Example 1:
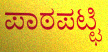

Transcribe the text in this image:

ಪಾಠಪಟ್ಟಿ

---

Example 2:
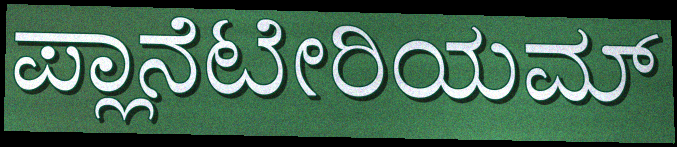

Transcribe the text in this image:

ಪ್ಲಾನೆಟೇರಿಯಮ್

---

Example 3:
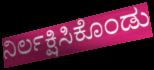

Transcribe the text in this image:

ನಿರ್ಲಕ್ಷಿಸಿಕೊಂಡು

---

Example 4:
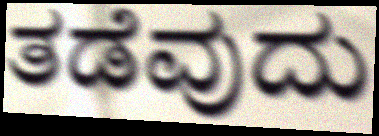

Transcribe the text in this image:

ತಡೆವುದು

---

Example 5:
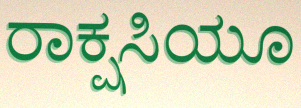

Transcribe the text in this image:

ರಾಕ್ಷಸಿಯೂ